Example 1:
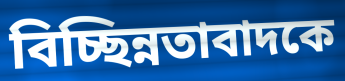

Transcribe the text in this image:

বিচ্ছিন্নতাবাদকে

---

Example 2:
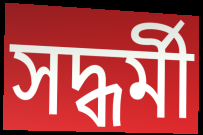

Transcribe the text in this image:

সদ্ধর্মী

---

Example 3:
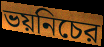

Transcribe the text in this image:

ভয়নিচের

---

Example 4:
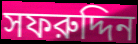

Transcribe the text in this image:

সফরুদ্দিন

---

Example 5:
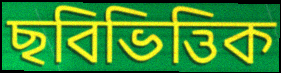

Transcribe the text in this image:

ছবিভিত্তিক